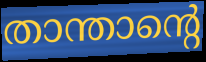
താന്താന്റെ